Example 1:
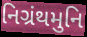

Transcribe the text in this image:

નિગ્રંથમુનિ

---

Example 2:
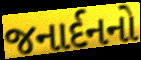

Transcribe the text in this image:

જનાર્દનનો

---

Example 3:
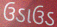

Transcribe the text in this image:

ઉડાઉડ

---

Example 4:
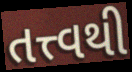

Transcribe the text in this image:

તત્ત્વથી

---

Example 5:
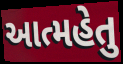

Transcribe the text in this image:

આત્મહેતુ